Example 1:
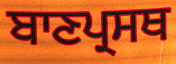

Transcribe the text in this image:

ਬਾਣਪ੍ਰਸਥ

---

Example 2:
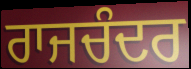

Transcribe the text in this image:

ਰਾਜਚੰਦਰ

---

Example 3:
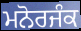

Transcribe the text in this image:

ਮਨੋਰਜੰਕ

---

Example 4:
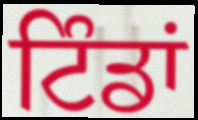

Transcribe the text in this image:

ਟਿੰਡਾਂ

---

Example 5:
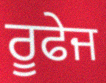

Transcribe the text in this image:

ਰੂਫੇਜ